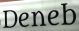
Deneb